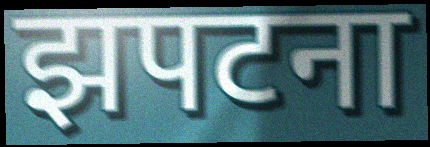
झपटना